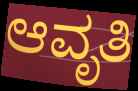
ಆವೃತಿ